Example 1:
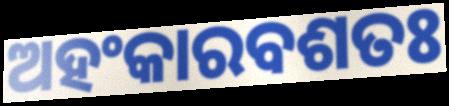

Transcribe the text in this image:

ଅହଂକାରବଶତଃ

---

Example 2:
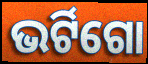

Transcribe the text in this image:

ଭର୍ଟିଗୋ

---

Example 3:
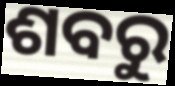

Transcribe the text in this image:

ଶବରୁ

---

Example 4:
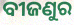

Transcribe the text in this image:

ବୀଜଣୁର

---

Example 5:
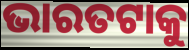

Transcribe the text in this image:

ଭାରତଟାକୁ